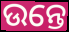
ଉନ୍ତେ